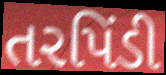
તરપિંડી